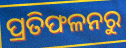
ପ୍ରତିଫଳନରୁ